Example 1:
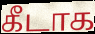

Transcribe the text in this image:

கீடாக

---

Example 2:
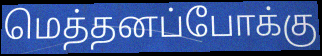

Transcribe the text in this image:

மெத்தனப்போக்கு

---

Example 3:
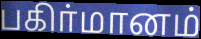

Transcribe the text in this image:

பகிர்மானம்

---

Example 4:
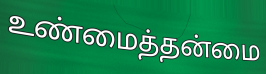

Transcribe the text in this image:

உண்மைத்தன்மை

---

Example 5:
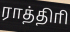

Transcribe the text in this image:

ராத்திரி